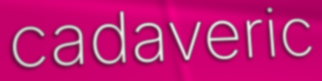
cadaveric